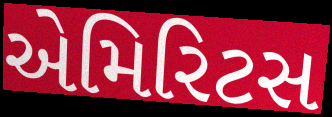
એમિરિટસ